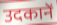
उदकानें